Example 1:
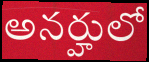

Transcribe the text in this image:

అనర్హులో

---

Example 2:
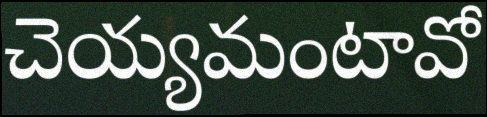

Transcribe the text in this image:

చెయ్యమంటావో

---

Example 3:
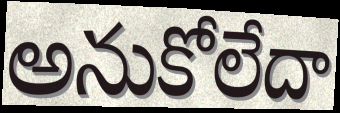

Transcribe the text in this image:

అనుకోలేదా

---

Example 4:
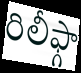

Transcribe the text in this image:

రిలీఫ్గా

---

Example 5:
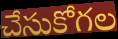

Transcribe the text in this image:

చేసుకోగల